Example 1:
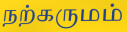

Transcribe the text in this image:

நற்கருமம்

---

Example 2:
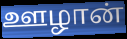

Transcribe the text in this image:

ஊழான்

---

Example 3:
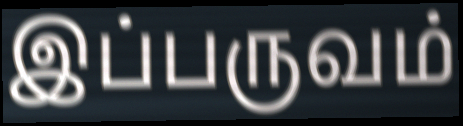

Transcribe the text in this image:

இப்பருவம்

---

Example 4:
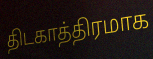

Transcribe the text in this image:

திடகாத்திரமாக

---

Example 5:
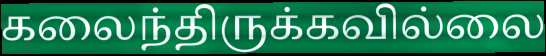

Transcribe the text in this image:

கலைந்திருக்கவில்லை